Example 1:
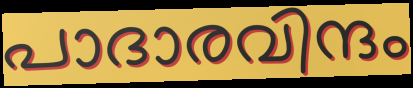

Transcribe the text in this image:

പാദാരവിന്ദം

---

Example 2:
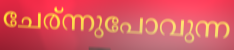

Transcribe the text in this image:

ചേര്ന്നുപോവുന്ന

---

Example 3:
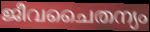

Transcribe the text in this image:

ജീവചൈതന്യം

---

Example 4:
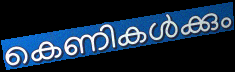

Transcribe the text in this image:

കെണികൾക്കും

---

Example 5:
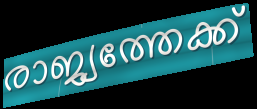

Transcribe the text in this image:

രാജ്യത്തേക്ക്